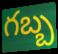
గబ్బ